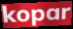
kopar